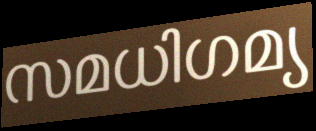
സമധിഗമ്യ